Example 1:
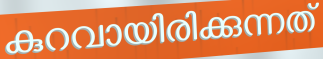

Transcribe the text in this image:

കുറവായിരിക്കുന്നത്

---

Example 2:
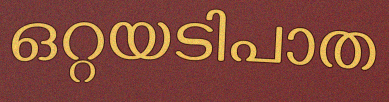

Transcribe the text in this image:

ഒറ്റയടിപാത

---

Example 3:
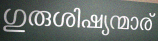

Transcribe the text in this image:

ഗുരുശിഷ്യന്മാര്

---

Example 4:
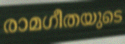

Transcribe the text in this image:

രാമഗീതയുടെ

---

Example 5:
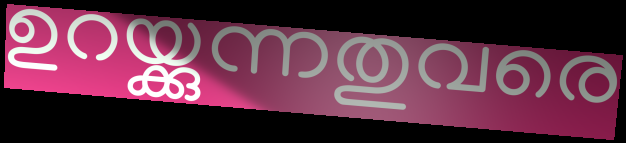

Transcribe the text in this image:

ഉറയ്ക്കുന്നതുവരെ